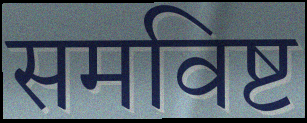
समविष्ट